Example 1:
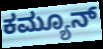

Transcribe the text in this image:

ಕಮ್ಯೂನ್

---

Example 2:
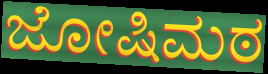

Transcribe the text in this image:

ಜೋಷಿಮಠ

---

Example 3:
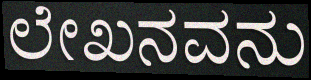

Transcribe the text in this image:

ಲೇಖನವನು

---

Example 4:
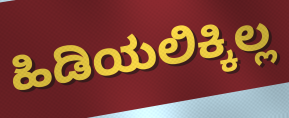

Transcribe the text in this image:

ಹಿಡಿಯಲಿಕ್ಕಿಲ್ಲ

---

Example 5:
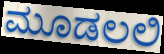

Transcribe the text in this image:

ಮೂಡಲಲಿ